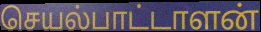
செயல்பாட்டாளன்